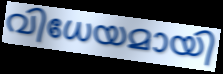
വിധേയമായി